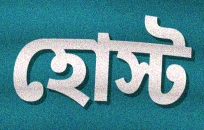
হোস্ট